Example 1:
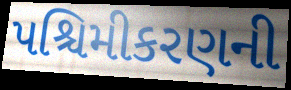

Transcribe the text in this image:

પશ્ચિમીકરણની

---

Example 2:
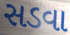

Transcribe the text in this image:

સડવા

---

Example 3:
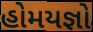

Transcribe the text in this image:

હોમયજ્ઞો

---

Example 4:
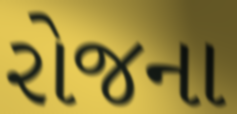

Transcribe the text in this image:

રોજના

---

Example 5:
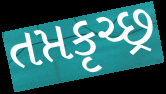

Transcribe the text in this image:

તપ્તકૃચ્છ્ર